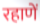
रहाणें